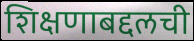
शिक्षणाबद्दलची